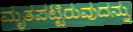
ಮೃತಪಟ್ಟಿರುವುದನ್ನು